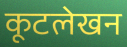
कूटलेखन